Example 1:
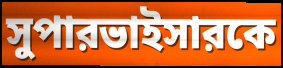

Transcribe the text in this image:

সুপারভাইসারকে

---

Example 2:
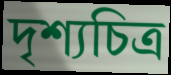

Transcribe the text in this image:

দৃশ্যচিত্র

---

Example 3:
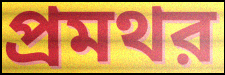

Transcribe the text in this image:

প্রমথর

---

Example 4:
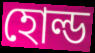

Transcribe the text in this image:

হোল্ড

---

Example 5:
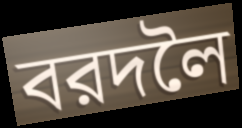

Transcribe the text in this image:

বরদলৈ